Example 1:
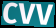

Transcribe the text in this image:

cvv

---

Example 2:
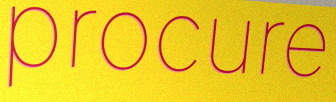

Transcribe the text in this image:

procure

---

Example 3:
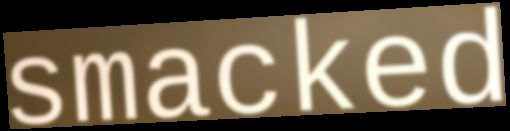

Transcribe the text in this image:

smacked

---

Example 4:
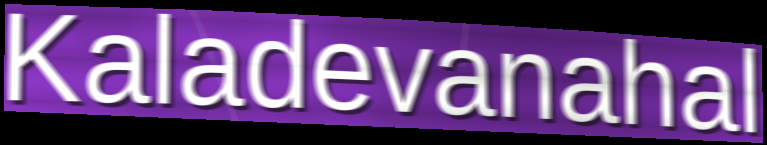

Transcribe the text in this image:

Kaladevanahal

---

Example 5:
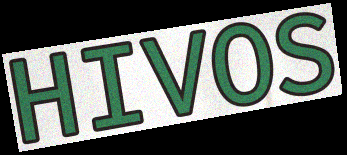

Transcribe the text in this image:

HIVOS